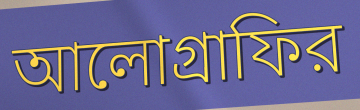
আলোগ্রাফির